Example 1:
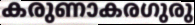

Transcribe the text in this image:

കരുണാകരഗുരു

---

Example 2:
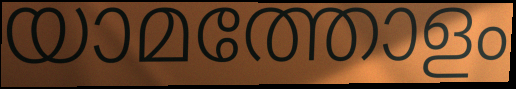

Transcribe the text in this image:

യാമത്തോളം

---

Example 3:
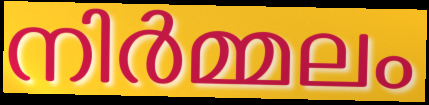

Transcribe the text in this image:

നിർമ്മലം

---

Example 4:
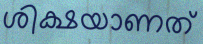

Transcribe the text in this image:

ശിക്ഷയാണത്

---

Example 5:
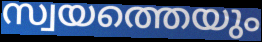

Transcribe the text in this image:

സ്വയത്തെയും